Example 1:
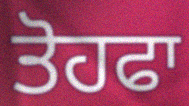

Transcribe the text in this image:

ਤੋਹਫਾ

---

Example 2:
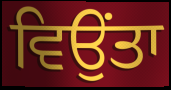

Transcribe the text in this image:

ਵਿਉਂਤਾ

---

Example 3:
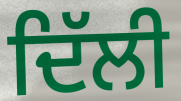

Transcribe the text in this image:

ਦਿੱਲੀ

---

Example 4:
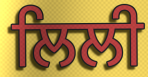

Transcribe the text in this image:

ਲਿਲੀ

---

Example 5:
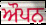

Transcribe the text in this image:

ਔਪਨ